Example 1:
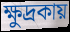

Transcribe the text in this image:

ক্ষুদ্রকায়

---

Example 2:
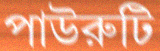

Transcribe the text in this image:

পাউরুটি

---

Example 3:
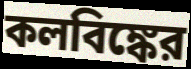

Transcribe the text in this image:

কলবিঙ্কের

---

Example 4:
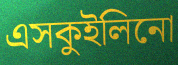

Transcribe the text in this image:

এসকুইলিনো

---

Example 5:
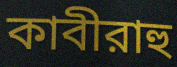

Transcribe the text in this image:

কাবীরাহু